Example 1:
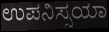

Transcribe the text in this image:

ಉಪನಿಸ್ಸಯಾ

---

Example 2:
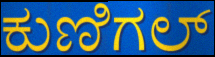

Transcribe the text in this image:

ಕುಣಿಗಲ್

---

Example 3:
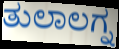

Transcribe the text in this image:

ತುಲಾಲಗ್ನ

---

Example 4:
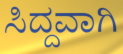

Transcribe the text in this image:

ಸಿದ್ದವಾಗಿ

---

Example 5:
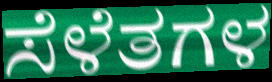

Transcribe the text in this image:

ಸೆಳೆತಗಳ